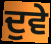
ਦੁਵੇ